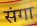
संगा